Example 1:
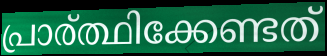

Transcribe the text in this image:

പ്രാര്ത്ഥിക്കേണ്ടത്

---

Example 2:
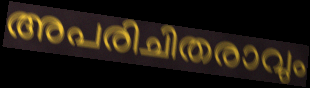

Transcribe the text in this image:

അപരിചിതരാവും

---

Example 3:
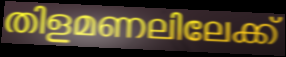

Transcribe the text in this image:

തിളമണലിലേക്ക്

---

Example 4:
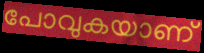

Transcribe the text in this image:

പോവുകയാണ്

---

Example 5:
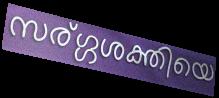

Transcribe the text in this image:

സര്ഗ്ഗശക്തിയെ